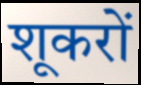
शूकरों